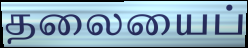
தலையைப்